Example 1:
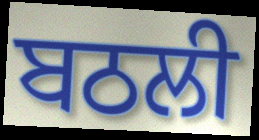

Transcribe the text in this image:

ਬਠਲੀ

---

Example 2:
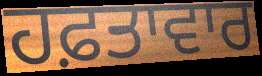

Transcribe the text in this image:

ਹਫ਼ਤਾਵਾਰ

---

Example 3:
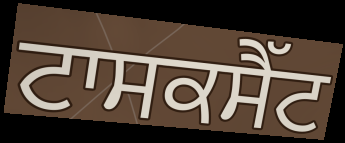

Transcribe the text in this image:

ਟਾਸਕਸੈੱਟ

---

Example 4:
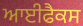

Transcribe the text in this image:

ਆਈਫੈਕਸ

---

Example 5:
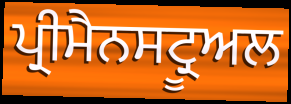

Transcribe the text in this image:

ਪ੍ਰੀਮੈਨਸਟ੍ਰੂਅਲ